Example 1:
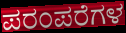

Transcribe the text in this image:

ಪರಂಪರೆಗಳ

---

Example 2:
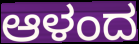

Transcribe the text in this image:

ಆಳಂದ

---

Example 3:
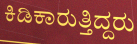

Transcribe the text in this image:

ಕಿಡಿಕಾರುತ್ತಿದ್ದರು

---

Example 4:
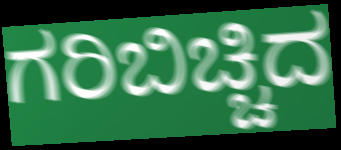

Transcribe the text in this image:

ಗರಿಬಿಚ್ಚಿದ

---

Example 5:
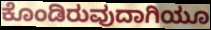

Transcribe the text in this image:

ಕೊಂಡಿರುವುದಾಗಿಯೂ